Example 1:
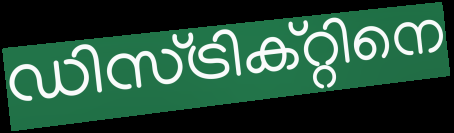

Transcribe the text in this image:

ഡിസ്ട്രിക്റ്റിനെ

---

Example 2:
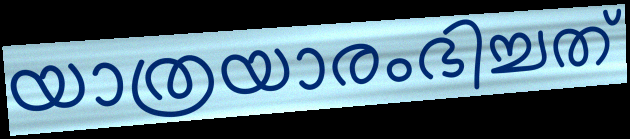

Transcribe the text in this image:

യാത്രയാരംഭിച്ചത്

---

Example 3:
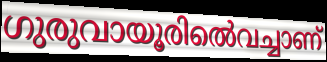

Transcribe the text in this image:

ഗുരുവായൂരിൽെവച്ചാണ്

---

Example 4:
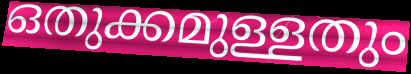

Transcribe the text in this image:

ഒതുക്കമുള്ളതും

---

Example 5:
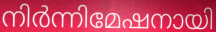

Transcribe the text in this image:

നിർന്നിമേഷനായി